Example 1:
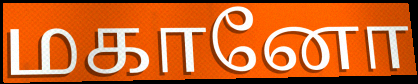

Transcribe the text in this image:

மகானோ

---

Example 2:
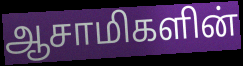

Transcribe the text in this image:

ஆசாமிகளின்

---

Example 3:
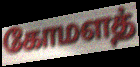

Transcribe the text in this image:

கோமளத்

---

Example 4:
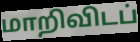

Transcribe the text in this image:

மாறிவிடப்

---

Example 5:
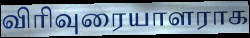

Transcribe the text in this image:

விரிவுரையாளராக